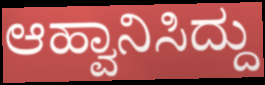
ಆಹ್ವಾನಿಸಿದ್ದು